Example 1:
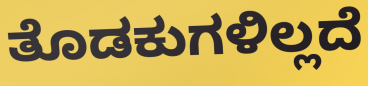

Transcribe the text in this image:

ತೊಡಕುಗಳಿಲ್ಲದೆ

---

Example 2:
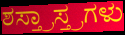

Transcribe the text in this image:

ಶಸ್ತ್ರಾಸ್ತ್ರಗಳು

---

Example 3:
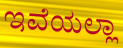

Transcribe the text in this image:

ಇವೆಯಲ್ಲಾ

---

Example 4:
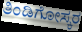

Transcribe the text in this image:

ತಿಂಡಿಗೋಸ್ಕರ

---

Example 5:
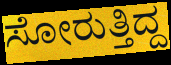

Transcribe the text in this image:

ಸೋರುತ್ತಿದ್ದ